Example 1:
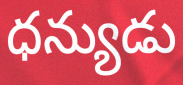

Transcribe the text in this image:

ధన్యుడు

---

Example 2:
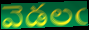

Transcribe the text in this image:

వెడలఁ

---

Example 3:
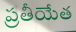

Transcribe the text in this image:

ప్రతీయేత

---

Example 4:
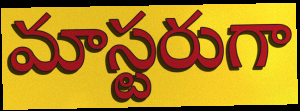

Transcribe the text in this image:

మాస్టరుగా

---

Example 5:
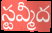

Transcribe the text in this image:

స్టవ్మీద